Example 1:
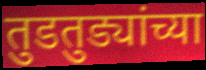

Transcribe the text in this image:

तुडतुड्यांच्या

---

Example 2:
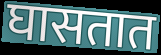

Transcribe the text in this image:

घासतात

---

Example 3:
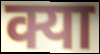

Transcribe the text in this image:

क्या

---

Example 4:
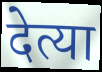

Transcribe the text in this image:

देत्या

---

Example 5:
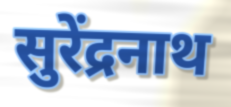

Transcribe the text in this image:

सुरेंद्रनाथ